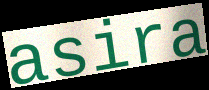
asira